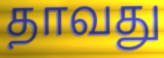
தாவது